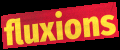
fluxions